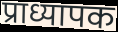
प्राध्यापक